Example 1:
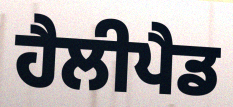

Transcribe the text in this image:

ਹੈਲੀਪੈਡ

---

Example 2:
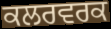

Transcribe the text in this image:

ਕਲਰਵਰਕ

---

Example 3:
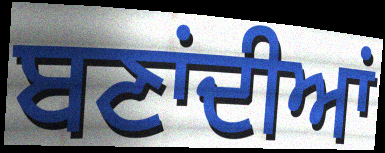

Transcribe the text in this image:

ਬਣਾਂਦੀਆਂ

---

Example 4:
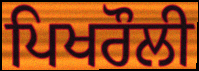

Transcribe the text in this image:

ਪਿਖਰੌਲੀ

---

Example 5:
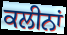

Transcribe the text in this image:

ਕਲੀਨਾਂ